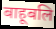
बाहूबलि